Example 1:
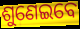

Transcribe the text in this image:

ଶୁଣେଇବେ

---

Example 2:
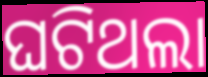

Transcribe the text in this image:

ଘଟିଥଲା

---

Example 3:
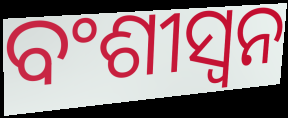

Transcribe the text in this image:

ବଂଶୀସ୍ୱନ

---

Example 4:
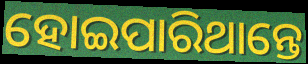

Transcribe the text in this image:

ହୋଇପାରିଥାନ୍ତେ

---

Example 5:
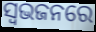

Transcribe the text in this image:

ସ୍ଵଭଜନରେ